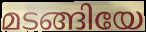
മടങ്ങിയേ